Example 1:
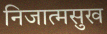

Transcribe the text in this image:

निजात्मसुख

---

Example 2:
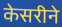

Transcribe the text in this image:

केसरीने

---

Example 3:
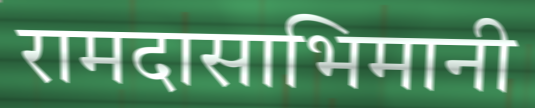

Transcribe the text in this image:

रामदासाभिमानी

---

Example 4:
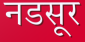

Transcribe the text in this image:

नडसूर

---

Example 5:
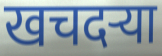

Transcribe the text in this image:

खचदऱ्या